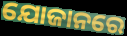
ଯୋଜାନରେ